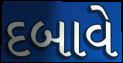
દબાવે